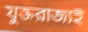
যুক্তরাজ্যই